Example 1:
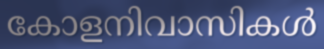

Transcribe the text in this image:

കോളനിവാസികൾ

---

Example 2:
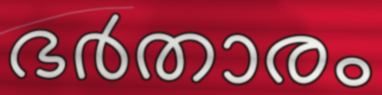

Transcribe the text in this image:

ഭർതാരം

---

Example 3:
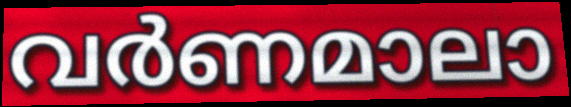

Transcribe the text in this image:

വർണമാലാ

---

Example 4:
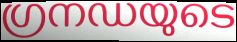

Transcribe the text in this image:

ഗ്രനഡയുടെ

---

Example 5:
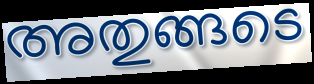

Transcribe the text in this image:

അതുങ്ങടെ